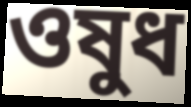
ওষুধ